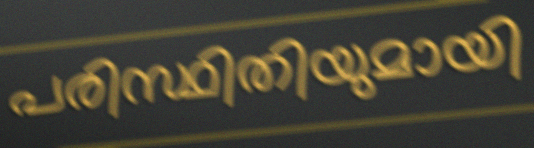
പരിസ്ഥിതിയുമായി